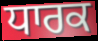
ਧਾਰਕ